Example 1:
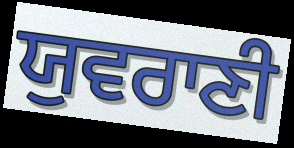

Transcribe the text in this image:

ਯੁਵਰਾਣੀ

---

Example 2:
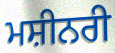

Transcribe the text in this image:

ਮਸ਼ੀਨਰੀ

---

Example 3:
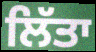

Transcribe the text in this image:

ਲਿੱਤਾ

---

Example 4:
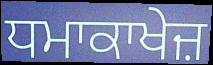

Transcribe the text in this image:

ਧਮਾਕਾਖੇਜ਼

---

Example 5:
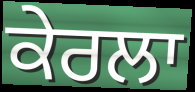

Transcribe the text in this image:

ਕੇਰਲਾ